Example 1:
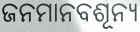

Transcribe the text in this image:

ଜନମାନବଶୂନ୍ୟ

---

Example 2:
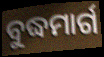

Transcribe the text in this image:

ବୁଦ୍ଧମାର୍ଗ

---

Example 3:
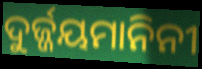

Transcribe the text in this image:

ଦୁର୍ଜ୍ଜୟମାନିନୀ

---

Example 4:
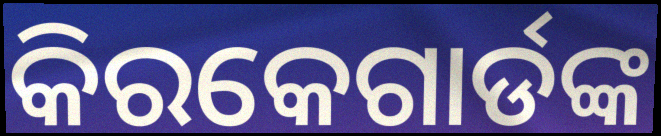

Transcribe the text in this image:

କିରକେଗାର୍ଡଙ୍କ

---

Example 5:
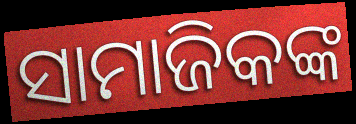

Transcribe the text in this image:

ସାମାଜିକଙ୍କ